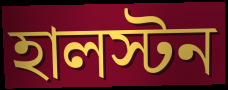
হালস্টন